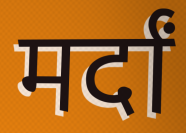
मर्दां